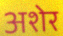
अशेर